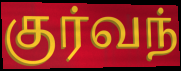
குர்வந்